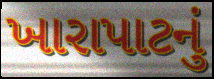
ખારાપાટનું